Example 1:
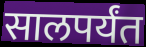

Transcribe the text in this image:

सालपर्यंत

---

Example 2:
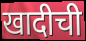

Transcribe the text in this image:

खादीची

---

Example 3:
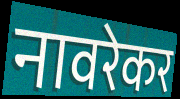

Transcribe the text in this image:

नावरेकर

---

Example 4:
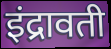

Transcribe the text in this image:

इंद्रावती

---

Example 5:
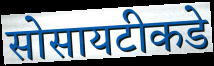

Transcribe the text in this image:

सोसायटीकडे